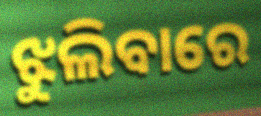
ଝୁଲିବାରେ